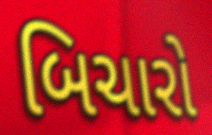
બિચારો